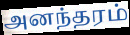
அனந்தரம்